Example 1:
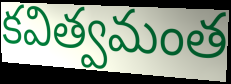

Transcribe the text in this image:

కవిత్వమంత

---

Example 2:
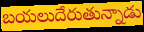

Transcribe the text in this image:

బయలుదేరుతున్నాడు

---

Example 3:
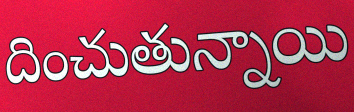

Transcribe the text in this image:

దించుతున్నాయి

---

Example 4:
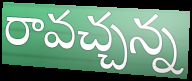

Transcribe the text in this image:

రావచ్చన్న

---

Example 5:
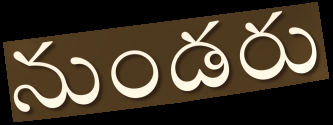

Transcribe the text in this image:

నుండరు